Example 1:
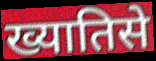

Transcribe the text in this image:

ख्यातिसे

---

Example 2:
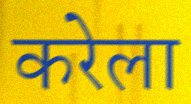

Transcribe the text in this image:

करेला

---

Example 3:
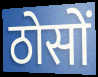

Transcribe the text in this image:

ठोसों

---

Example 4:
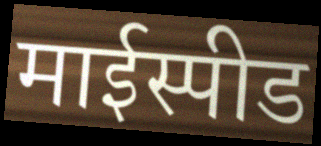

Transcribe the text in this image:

माईस्पीड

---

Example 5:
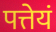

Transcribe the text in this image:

पत्तेयं